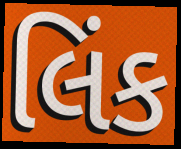
લિંક